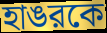
হাঙরকে